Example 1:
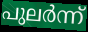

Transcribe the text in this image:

പുലർന്ന്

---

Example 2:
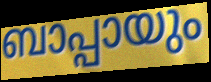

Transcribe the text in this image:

ബാപ്പായും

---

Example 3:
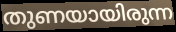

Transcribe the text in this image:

തുണയായിരുന്ന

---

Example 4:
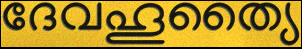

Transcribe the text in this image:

ദേവഹൂത്യൈ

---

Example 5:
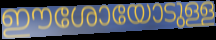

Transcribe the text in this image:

ഈശോയോടുള്ള